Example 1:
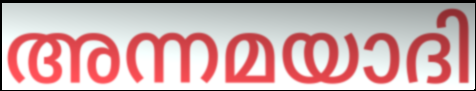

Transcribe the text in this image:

അന്നമയാദി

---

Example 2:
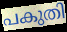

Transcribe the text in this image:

പകുതി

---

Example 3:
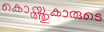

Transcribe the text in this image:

കൊയ്ത്തുകാരുടെ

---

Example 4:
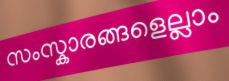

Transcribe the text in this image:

സംസ്കാരങ്ങളെല്ലാം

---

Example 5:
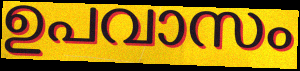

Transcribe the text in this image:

ഉപവാസം